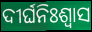
ଦୀର୍ଘନିଃଶ୍ବାସ